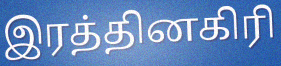
இரத்தினகிரி